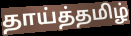
தாய்த்தமிழ்